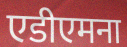
एडीएमना